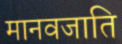
मानवजाति